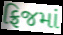
ફ્રિજમાં